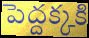
పెద్దక్కకి